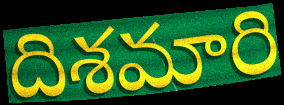
దిశమారి